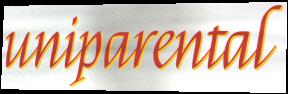
uniparental